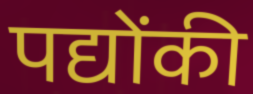
पद्योंकी